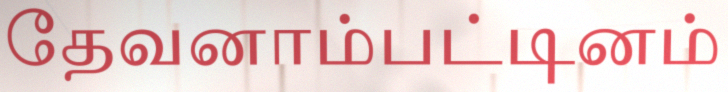
தேவனாம்பட்டினம்